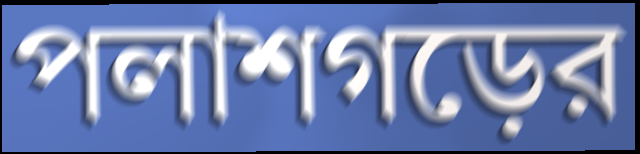
পলাশগড়ের